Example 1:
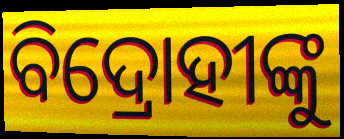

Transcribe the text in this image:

ବିଦ୍ରୋହୀଙ୍କୁ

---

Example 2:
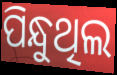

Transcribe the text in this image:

ପିନ୍ଧୁଥିଲ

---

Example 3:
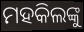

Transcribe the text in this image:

ମହକିଲଙ୍କୁ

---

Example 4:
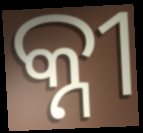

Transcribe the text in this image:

କ୍ନୀ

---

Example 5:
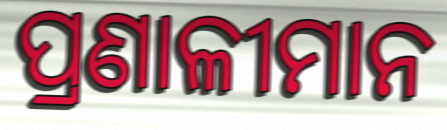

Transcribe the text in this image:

ପ୍ରଣାଳୀମାନ